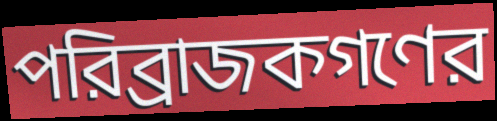
পরিব্রাজকগণের